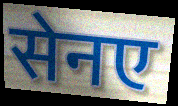
सेनए